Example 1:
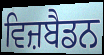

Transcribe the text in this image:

ਵਿਜ਼ਬੈਡਨ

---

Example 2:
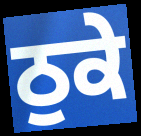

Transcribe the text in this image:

ਠੁਕੇ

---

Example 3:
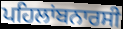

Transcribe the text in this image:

ਪਹਿਲਾਂਬਨਾਰਸੀ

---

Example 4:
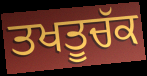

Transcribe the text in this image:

ਤਖਤੂਚੱਕ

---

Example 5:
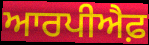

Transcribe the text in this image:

ਆਰਪੀਐਫ਼